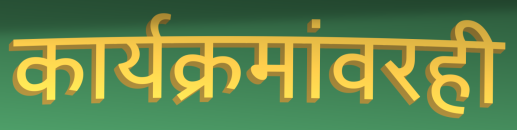
कार्यक्रमांवरही